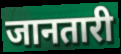
जानतारी